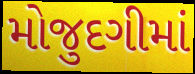
મોજુદગીમાં